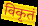
विकृतं